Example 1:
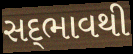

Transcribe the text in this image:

સદ્‍ભાવથી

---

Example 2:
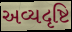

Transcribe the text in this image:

અવ્યદૃષ્ટિ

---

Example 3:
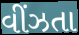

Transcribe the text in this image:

વીંઝતા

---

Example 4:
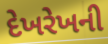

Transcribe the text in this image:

દેખરેખની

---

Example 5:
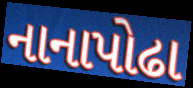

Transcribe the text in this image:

નાનાપોઢા